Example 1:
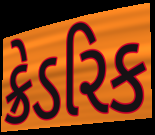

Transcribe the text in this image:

ક્રેડરિક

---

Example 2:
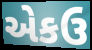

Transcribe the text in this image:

એકઉ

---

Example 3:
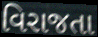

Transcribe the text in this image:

વિરાજતા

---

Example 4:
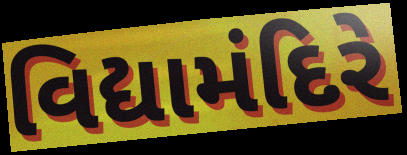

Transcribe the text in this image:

વિદ્યામંદિરે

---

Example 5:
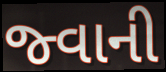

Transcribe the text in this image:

જ્વાની